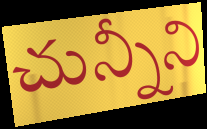
చున్నీని